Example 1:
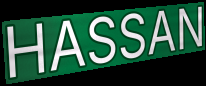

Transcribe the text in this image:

HASSAN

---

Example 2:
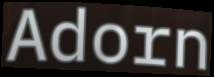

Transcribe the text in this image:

Adorn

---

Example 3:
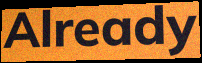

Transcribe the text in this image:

Already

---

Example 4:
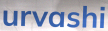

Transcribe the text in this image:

urvashi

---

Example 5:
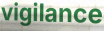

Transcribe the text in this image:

vigilance